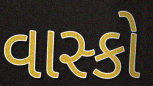
વાસ્કો